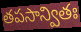
తపసాన్వితః